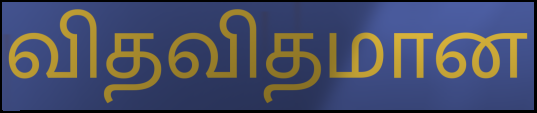
விதவிதமான